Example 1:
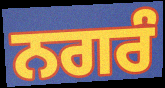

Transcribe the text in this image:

ਨਗਰੰ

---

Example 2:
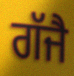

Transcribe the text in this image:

ਗੱਜੈ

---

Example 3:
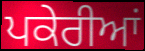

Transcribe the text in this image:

ਪਕੇਰੀਆਂ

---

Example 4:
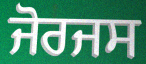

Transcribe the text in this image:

ਜੋਰਜਸ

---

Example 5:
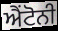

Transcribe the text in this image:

ਐਂਟੋਨੀ